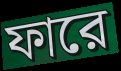
ফারে